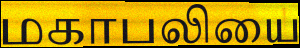
மகாபலியை